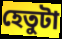
হেতুটা